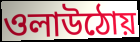
ওলাউঠোয়